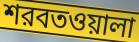
শরবতওয়ালা